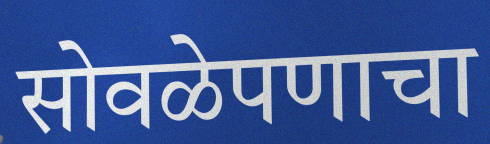
सोवळेपणाचा